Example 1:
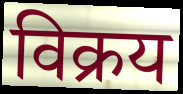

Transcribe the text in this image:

विक्रय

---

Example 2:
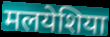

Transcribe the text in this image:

मलयेशिया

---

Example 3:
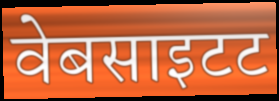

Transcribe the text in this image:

वेबसाइटट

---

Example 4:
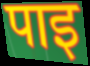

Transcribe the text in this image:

पाइ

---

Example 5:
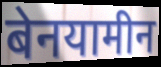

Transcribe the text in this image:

बेनयामीन